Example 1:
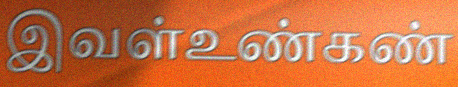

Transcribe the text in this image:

இவள்உண்கண்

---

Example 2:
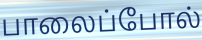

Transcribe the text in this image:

பாலைப்போல்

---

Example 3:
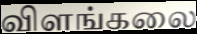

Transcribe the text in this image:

விளங்கலை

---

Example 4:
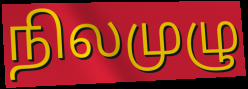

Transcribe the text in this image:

நிலமுழு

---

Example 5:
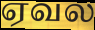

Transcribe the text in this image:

ஏவல